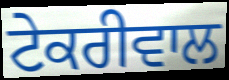
ਟੇਕਰੀਵਾਲ